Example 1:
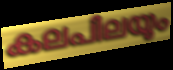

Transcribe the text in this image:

കലപിലയും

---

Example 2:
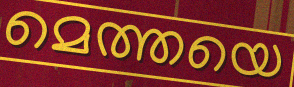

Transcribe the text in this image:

മെത്തയെ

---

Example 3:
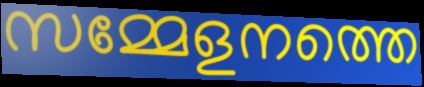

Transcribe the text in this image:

സമ്മേളനത്തെ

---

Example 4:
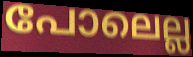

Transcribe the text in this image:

പോലെല്ല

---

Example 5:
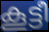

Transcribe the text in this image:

കൂട്ടീ